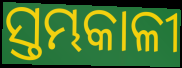
ସ୍ତମ୍ଭକାଳୀ